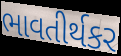
ભાવતીર્થકર